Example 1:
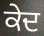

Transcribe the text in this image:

ਕੇਦ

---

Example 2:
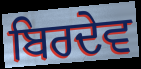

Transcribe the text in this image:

ਬਿਰਦੇਵ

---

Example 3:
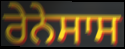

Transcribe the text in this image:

ਰੇਨੇਸਾਸ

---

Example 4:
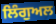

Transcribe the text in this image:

ਲਿੰਗੁਅਲ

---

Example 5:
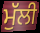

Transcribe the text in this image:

ਮੁੱਲੀ